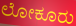
ಲೋಕೂರು